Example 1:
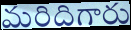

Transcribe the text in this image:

మరిదిగారు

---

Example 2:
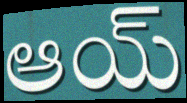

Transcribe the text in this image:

ఆయ్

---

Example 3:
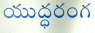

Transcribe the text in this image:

యుద్ధరంగ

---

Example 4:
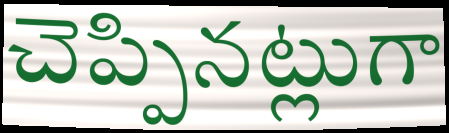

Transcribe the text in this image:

చెప్పినట్లుగా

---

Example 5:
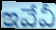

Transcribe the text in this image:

ఇవేవీ